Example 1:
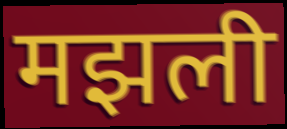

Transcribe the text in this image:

मझली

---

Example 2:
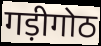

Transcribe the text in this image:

गड़ीगोठ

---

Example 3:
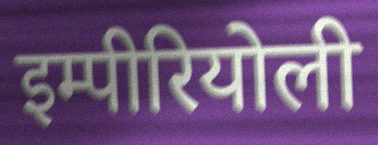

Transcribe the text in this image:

इम्पीरियोली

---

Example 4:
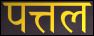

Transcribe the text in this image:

पत्तल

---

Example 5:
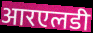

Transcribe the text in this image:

आरएलडी